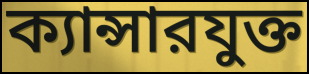
ক্যান্সারযুক্ত